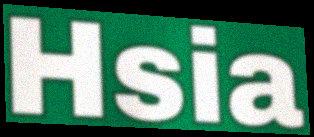
Hsia